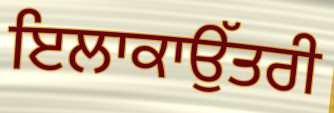
ਇਲਾਕਾਉੱਤਰੀ